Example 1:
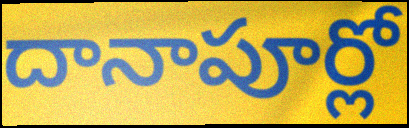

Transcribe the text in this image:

దానాపూర్లో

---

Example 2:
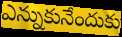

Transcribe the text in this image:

ఎన్నుకునేందుకు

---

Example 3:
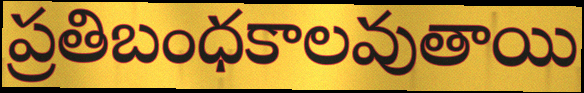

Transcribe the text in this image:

ప్రతిబంధకాలవుతాయి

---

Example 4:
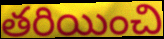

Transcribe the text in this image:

తరియించి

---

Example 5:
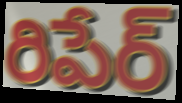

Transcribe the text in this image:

రిపేర్